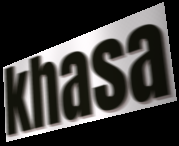
khasa